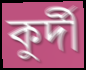
কুর্দী